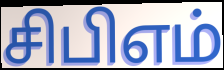
சிபிஎம்